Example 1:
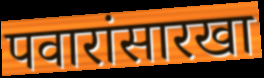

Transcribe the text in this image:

पवारांसारखा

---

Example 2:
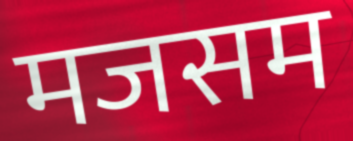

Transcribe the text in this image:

मजसम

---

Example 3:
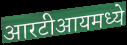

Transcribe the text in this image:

आरटीआयमध्ये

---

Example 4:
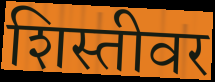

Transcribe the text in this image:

शिस्तीवर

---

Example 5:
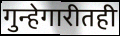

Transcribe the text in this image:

गुन्हेगारीतही